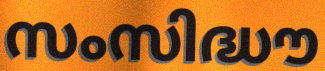
സംസിദ്ധൗ